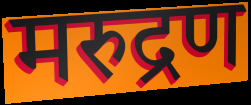
मरुद्रण